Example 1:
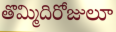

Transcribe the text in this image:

తొమ్మిదిరోజులూ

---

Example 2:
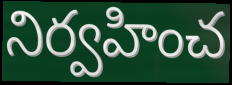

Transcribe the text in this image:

నిర్వహించ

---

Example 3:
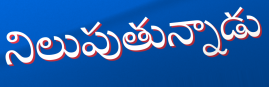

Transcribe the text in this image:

నిలుపుతున్నాడు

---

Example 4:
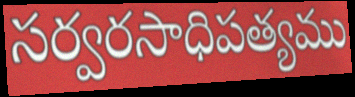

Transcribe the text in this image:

సర్వరసాధిపత్యము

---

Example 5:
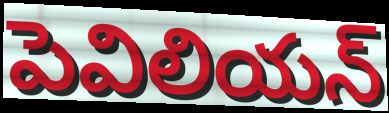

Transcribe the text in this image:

పెవిలియన్